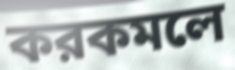
করকমলে